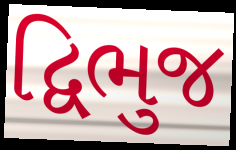
દ્વિભુજ